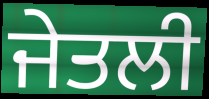
ਜੇਤਲੀ